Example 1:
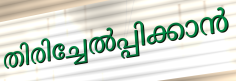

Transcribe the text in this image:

തിരിച്ചേൽപ്പിക്കാൻ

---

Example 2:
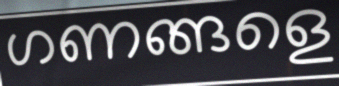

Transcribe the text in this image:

ഗണങ്ങളെ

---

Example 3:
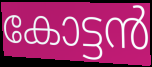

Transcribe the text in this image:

കോട്ടൻ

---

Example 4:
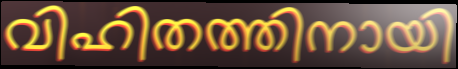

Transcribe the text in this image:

വിഹിതത്തിനായി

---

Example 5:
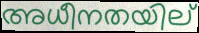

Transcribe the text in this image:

അധീനതയില്